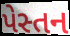
પેસ્તન